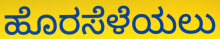
ಹೊರಸೆಳೆಯಲು